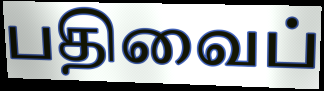
பதிவைப்